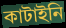
কাটাইনি